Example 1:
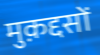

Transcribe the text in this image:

मुक़द्दसों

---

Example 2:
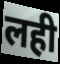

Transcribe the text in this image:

लही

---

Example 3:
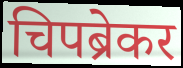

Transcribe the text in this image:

चिपब्रेकर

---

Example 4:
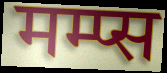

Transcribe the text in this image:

मम्प्स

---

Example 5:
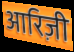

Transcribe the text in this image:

आरिज़ी